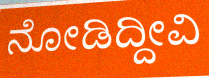
ನೋಡಿದ್ದೀವಿ